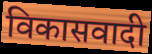
विकासवादी